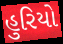
હુરિયો